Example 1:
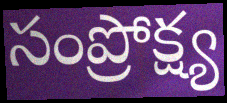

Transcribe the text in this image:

సంప్రోక్ష్య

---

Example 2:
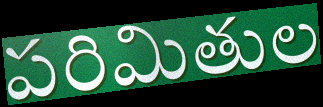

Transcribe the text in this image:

పరిమితుల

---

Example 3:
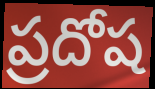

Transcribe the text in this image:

ప్రదోష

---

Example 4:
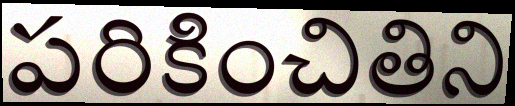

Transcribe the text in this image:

పరికించితిని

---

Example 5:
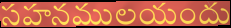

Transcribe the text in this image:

సహనములయందు